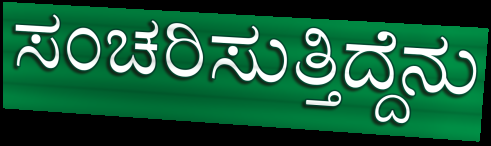
ಸಂಚರಿಸುತ್ತಿದ್ದೆನು